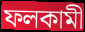
ফলকামী